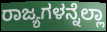
ರಾಜ್ಯಗಳನ್ನೆಲ್ಲಾ